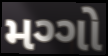
મગ્ગો